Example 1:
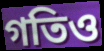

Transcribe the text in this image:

গতিও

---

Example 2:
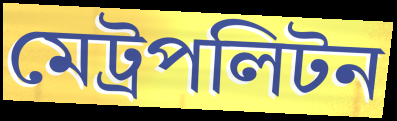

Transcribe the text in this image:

মেট্রপলিটন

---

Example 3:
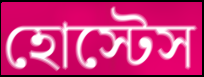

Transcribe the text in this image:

হোস্টেস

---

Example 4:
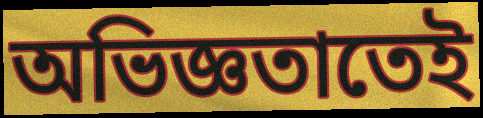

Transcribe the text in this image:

অভিজ্ঞতাতেই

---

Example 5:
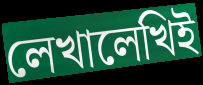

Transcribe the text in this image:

লেখালেখিই